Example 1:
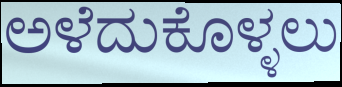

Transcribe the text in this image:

ಅಳೆದುಕೊಳ್ಳಲು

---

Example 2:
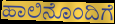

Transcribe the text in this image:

ಹಾಲಿನೊಂದಿಗೆ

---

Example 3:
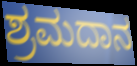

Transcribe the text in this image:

ಶ್ರಮದಾನ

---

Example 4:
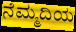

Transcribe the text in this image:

ನೆಮ್ಮದಿಯ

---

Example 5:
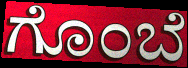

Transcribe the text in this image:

ಗೊಂಬೆ